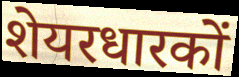
शेयरधारकों